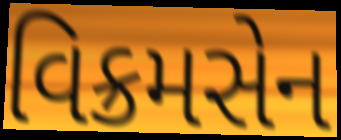
વિક્રમસેન